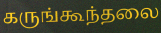
கருங்கூந்தலை